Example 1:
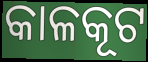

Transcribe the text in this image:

କାଳକୂଟ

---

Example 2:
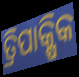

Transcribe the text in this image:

ତ୍ରିପାକ୍ଷିକ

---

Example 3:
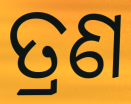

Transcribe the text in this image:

ତ୍ରଣ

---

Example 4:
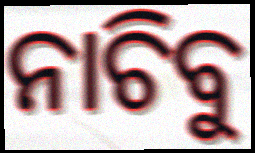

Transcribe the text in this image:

ନାଚିବୁ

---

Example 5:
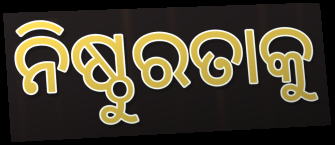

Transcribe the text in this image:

ନିଷ୍ଠୁରତାକୁ